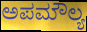
ಅಪಮೌಲ್ಯ